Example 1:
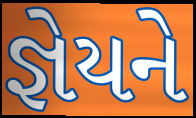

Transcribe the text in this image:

જ્ઞેયને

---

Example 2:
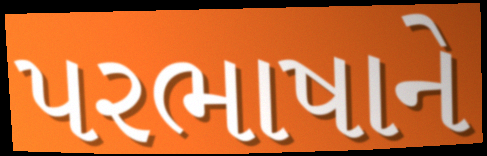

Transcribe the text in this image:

પરભાષાને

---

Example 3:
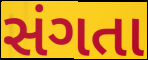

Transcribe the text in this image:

સંગતા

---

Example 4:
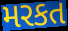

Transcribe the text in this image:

મરકત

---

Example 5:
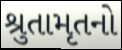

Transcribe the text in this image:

શ્રુતામૃતનો